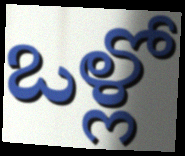
ఒళ్లో